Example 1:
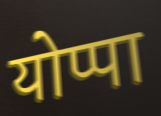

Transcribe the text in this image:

योप्पा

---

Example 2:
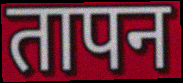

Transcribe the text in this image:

तापन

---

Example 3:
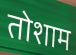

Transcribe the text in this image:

तोशाम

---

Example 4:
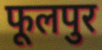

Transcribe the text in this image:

फूलपुर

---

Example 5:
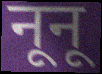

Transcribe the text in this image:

नूनू